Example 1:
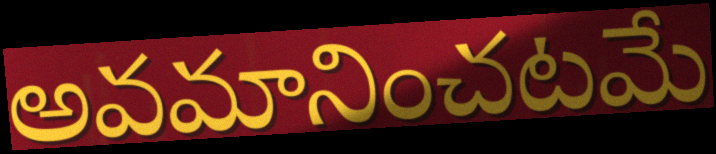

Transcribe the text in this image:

అవమానించటమే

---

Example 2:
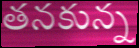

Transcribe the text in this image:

తనకున్న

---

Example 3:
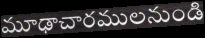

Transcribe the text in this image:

మూఢాచారములనుండి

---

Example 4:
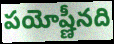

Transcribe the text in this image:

పయోష్ణీనది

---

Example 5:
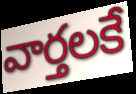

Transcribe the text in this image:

వార్తలకే